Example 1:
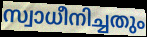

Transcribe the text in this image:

സ്വാധീനിച്ചതും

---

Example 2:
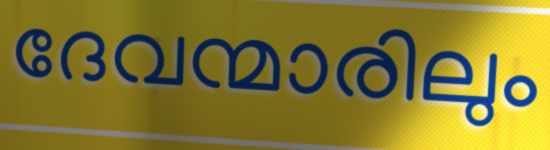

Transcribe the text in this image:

ദേവന്മാരിലും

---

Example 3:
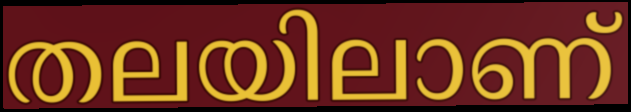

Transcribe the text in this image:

തലയിലാണ്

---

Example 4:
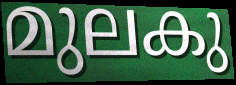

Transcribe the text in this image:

മുലകു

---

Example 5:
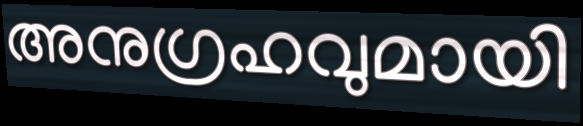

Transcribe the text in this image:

അനുഗ്രഹവുമായി